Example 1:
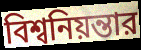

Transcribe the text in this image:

বিশ্বনিয়ন্তার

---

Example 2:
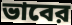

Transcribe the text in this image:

ভাবের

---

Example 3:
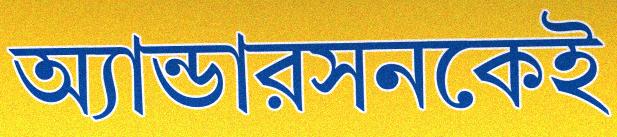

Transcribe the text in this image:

অ্যান্ডারসনকেই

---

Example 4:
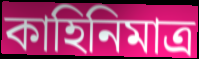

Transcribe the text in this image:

কাহিনিমাত্র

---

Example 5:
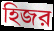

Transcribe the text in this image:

হিজর